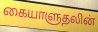
கையாளுதலின்